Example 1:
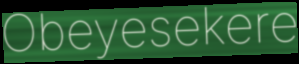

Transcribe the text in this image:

Obeyesekere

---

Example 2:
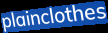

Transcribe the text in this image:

plainclothes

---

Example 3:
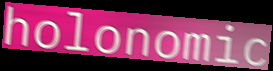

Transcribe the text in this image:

holonomic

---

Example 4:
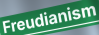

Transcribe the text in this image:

Freudianism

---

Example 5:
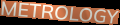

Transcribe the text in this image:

METROLOGY